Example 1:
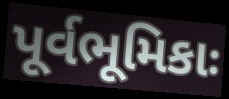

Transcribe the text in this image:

પૂર્વભૂમિકાઃ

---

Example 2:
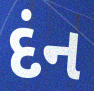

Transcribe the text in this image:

દંન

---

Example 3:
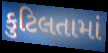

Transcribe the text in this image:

કુટિલતામાં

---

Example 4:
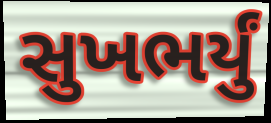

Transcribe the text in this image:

સુખભર્યું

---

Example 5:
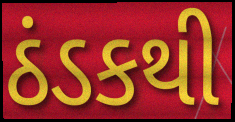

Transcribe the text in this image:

ઠંડકથી